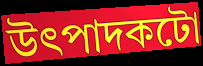
উৎপাদকটো